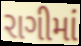
રાગીમાં